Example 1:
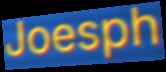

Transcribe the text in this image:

Joesph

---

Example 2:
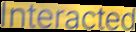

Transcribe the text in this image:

Interacted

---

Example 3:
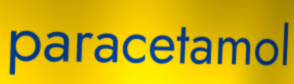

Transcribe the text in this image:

paracetamol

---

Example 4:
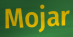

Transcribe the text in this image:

Mojar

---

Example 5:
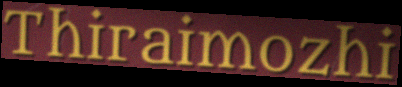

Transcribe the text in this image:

Thiraimozhi